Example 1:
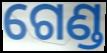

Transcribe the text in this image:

ଗେଣ୍ଡ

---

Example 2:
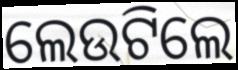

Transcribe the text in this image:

ଲେଉଟିଲେ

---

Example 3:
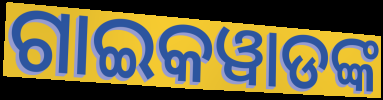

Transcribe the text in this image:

ଗାଇକୱାଡଙ୍କ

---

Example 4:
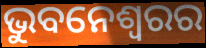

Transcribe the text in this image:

ଭୁବନେଶ୍ଵରର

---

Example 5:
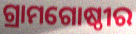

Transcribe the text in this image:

ଗ୍ରାମଗୋଷ୍ଠୀର